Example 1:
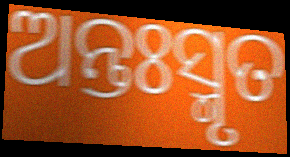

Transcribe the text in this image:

ଅନ୍ତଃସ୍ମୃତ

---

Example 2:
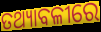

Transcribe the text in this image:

ତଥ୍ୟାବଳୀରେ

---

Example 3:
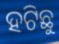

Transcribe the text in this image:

ହଟିଛୁ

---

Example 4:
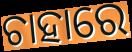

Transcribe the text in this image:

ଚାହାରେ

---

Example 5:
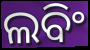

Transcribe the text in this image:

ଲବିଂ